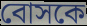
বোসকে